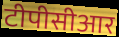
टीपीसीआर